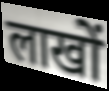
लाखों